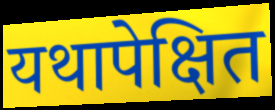
यथापेक्षित